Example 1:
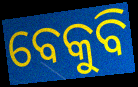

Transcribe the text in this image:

ବେକୁବି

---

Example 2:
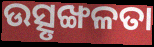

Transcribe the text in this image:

ଉତ୍ସୃଙ୍ଖଳତା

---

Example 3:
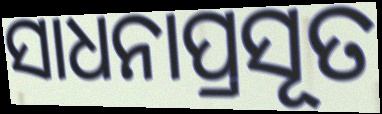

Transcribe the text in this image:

ସାଧନାପ୍ରସୂତ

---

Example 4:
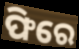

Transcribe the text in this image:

ଫିରେ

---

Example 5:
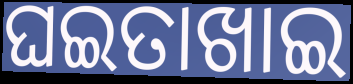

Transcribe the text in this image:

ଘଇତାଖାଇ